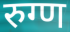
रुग्ण